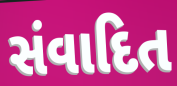
સંવાદિત